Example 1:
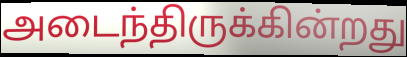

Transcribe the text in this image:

அடைந்திருக்கின்றது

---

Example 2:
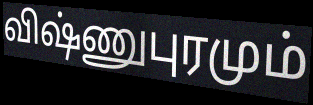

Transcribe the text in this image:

விஷ்ணுபுரமும்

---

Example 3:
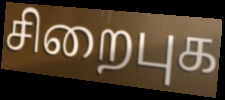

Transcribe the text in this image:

சிறைபுக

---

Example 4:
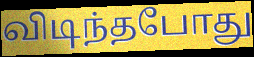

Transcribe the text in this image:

விடிந்தபோது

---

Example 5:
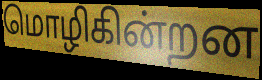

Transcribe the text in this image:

மொழிகின்றன